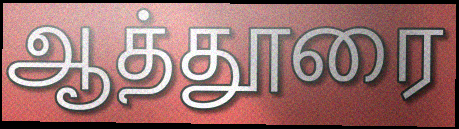
ஆத்தூரை